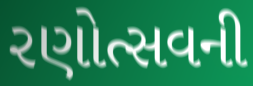
રણોત્સવની